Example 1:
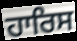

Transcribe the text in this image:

ਹਾਰਿਸ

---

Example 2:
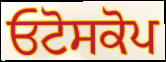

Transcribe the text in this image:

ਓਟੋਸਕੋਪ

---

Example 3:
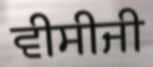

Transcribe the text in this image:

ਵੀਸੀਜੀ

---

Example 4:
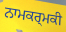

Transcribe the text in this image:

ਨਾਮਕਰ੍ਮਕੀ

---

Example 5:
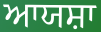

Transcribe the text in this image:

ਆਯਸ਼ਾ